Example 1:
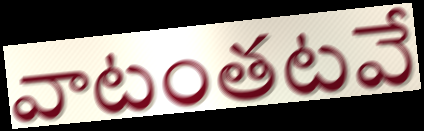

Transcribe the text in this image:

వాటంతటవే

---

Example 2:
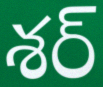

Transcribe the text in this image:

శర్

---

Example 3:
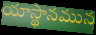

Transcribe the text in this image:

యాస్థానమున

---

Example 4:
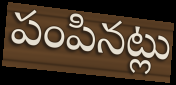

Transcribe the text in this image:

పంపినట్లు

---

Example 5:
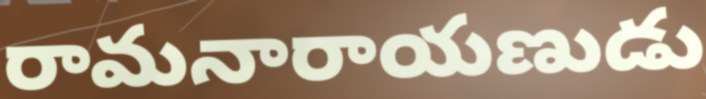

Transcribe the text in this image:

రామనారాయణుడు